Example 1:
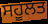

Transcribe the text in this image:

ਸਹੂਲਤ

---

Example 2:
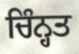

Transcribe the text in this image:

ਚਿੰਨ੍ਹਤ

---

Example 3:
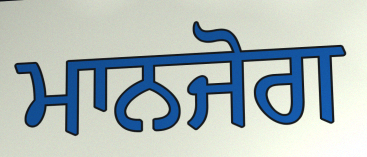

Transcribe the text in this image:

ਮਾਨਜੋਗ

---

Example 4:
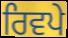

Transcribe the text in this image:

ਰਿਵਪੇ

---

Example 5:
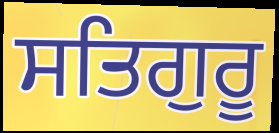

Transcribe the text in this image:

ਸਤਿਗੁਰੂ